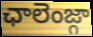
ఛాలెంజ్గా